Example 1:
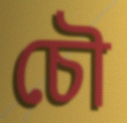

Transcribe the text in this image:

চৌ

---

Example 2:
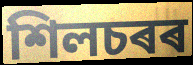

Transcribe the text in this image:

শিলচৰৰ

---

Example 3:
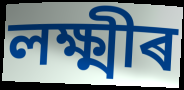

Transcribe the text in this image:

লক্ষ্মীৰ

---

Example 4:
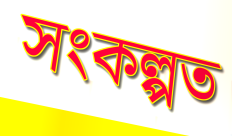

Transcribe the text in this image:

সংকল্পত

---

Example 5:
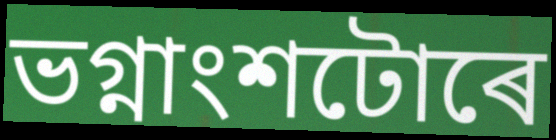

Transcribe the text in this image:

ভগ্নাংশটোৰে